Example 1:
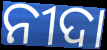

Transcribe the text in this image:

ନୀଦା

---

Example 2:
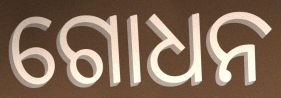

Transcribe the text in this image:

ଗୋଧନ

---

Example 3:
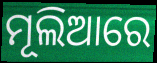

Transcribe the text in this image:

ମୂଲିଆରେ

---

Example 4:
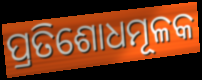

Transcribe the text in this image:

ପ୍ରତିଶୋଧମୂଳକ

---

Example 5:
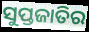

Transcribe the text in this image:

ସୁପ୍ତଜାତିର